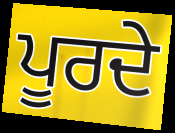
ਪੂਰਦੇ